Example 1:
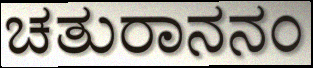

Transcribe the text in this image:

ಚತುರಾನನಂ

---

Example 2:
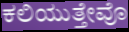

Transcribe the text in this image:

ಕಲಿಯುತ್ತೇವೊ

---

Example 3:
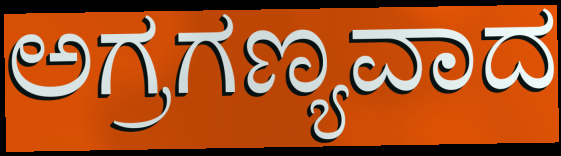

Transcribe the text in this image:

ಅಗ್ರಗಣ್ಯವಾದ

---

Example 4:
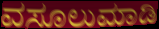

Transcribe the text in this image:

ವಸೂಲುಮಾಡಿ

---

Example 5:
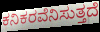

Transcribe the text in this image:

ಕನಿಕರವೆನಿಸುತ್ತದೆ